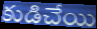
కుడిచేయి